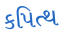
કપિત્થ